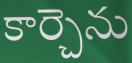
కార్చెను